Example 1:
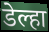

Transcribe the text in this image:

डेल्हा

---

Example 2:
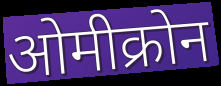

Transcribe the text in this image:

ओमीक्रोन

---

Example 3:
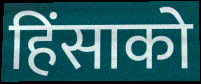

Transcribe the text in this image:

हिंसाको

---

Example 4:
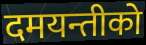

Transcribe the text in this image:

दमयन्तीको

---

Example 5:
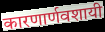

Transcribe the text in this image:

कारणार्णवशायी